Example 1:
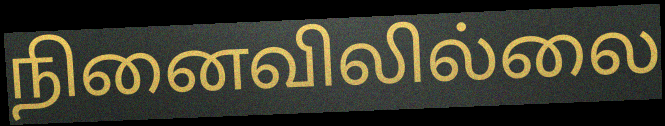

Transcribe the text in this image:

நினைவிலில்லை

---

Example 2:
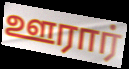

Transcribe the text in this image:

ஊரார்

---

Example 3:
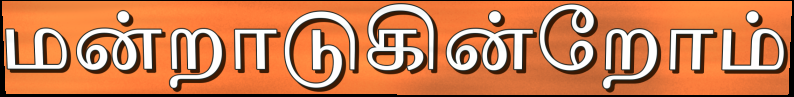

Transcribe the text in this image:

மன்றாடுகின்றோம்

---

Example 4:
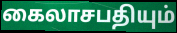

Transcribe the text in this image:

கைலாசபதியும்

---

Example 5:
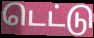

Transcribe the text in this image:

டெட்டு